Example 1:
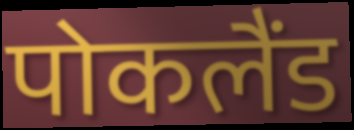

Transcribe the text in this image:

पोकलैंड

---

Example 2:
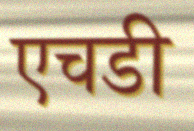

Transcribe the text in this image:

एचडी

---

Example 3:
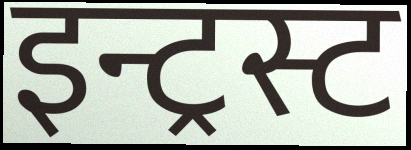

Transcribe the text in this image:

इन्ट्रस्ट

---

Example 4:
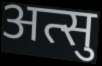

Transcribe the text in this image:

अत्सु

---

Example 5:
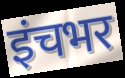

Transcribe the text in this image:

इंचभर